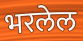
भरलेल